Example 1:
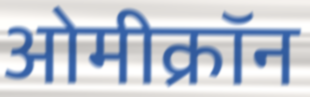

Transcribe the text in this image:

ओमीक्रॉन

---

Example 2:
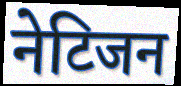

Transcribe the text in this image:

नेटिजन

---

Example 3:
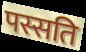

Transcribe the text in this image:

पस्सति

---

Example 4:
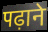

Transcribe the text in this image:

पढ़ाने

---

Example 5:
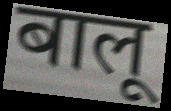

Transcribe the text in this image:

बालू